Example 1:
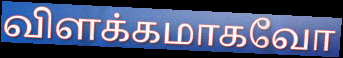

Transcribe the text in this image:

விளக்கமாகவோ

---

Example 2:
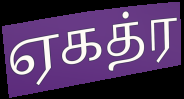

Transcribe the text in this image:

ஏகத்ர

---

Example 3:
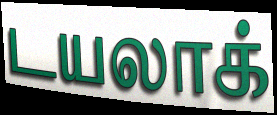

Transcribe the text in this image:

டயலாக்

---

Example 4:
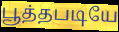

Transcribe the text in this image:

பூத்தபடியே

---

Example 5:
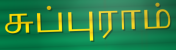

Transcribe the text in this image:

சுப்புராம்